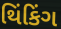
થિંકિંગ